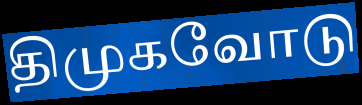
திமுகவோடு